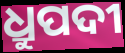
ଧ୍ରୁପଦୀ